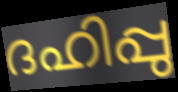
ദഹിപ്പു